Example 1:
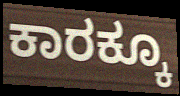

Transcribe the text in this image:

ಕಾರಕ್ಕೂ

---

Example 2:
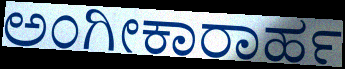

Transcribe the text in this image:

ಅಂಗೀಕಾರಾರ್ಹ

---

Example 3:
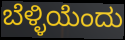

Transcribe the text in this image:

ಬೆಳ್ಳಿಯೆಂದು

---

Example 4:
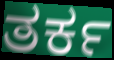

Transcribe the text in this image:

ತರ್ಕ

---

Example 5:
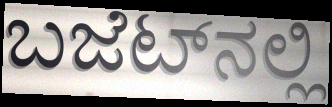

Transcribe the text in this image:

ಬಜೆಟ್‌ನಲ್ಲಿ